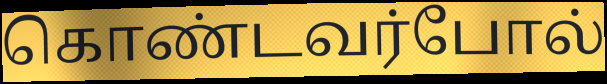
கொண்டவர்போல்